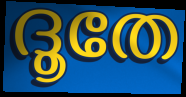
ദൂതേ